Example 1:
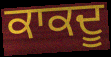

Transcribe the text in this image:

ਕਾਕਦੂ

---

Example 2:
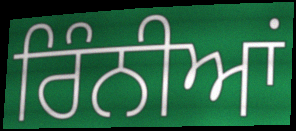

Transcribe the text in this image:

ਰਿੰਨੀਆਂ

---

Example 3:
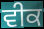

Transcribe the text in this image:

ਵੀਕ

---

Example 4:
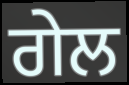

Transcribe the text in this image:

ਗੇਲ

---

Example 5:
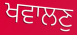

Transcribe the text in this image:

ਖਵਾਲਣੁ